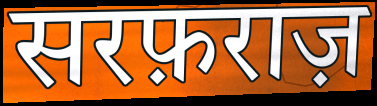
सरफ़राज़